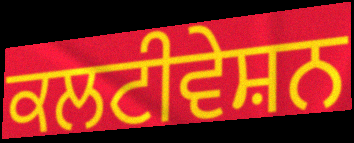
ਕਲਟੀਵੇਸ਼ਨ